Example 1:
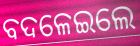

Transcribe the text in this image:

ବଦଳେଇଲେ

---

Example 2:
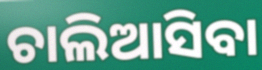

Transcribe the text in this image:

ଚାଲିଆସିବା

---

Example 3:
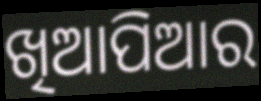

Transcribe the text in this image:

ଖିଆପିଆର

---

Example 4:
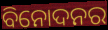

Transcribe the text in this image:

ବିନୋଦନର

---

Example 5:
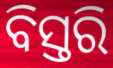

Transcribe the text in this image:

ବିସ୍ତରି